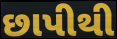
છાપીથી